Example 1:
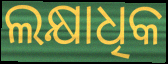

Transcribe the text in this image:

ଲକ୍ଷାଧିକ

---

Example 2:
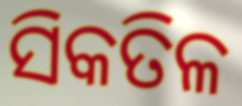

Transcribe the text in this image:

ସିକତିଳ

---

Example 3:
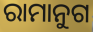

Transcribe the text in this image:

ରାମାନୁଗ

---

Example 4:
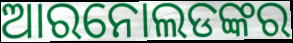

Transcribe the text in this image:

ଆରନୋଲଡଙ୍କର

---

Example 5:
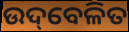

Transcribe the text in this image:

ଉଦ୍‌ବେଳିତ